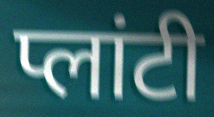
प्लांटी